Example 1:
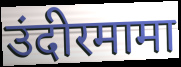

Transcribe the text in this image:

उंदीरमामा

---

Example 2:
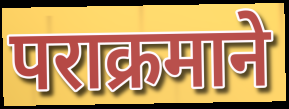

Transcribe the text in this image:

पराक्रमाने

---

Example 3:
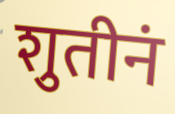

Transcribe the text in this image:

श्रुतीनं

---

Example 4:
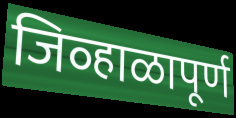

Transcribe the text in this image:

जिव्हाळापूर्ण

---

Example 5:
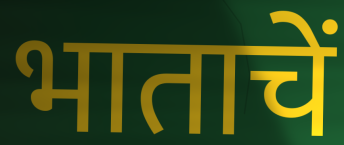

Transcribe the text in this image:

भाताचें